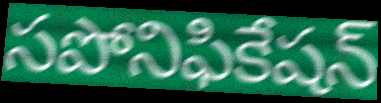
సపోనిఫికేషన్